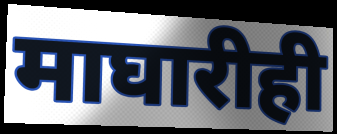
माघारीही